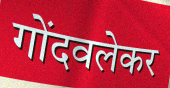
गोंदवलेकर